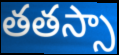
తతస్సా